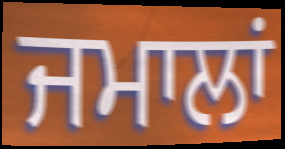
ਜਮਾਲਾਂ